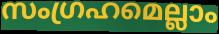
സംഗ്രഹമെല്ലാം